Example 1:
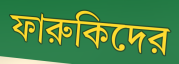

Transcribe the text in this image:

ফারুকিদের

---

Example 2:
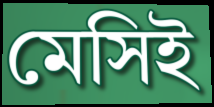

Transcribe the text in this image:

মেসিই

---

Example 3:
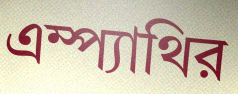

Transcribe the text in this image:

এম্প্যাথির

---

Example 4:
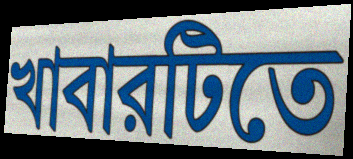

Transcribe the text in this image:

খাবারটিতে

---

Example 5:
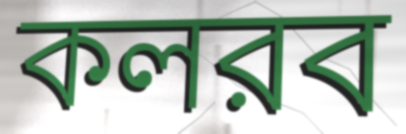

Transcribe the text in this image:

কলরব